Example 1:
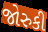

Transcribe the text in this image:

જોરુકી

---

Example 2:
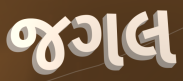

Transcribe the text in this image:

જગલ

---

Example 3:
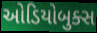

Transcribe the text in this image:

ઓડિયોબુક્સ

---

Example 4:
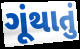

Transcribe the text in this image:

ગૂંથાતું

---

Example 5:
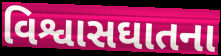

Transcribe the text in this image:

વિશ્વાસઘાતના